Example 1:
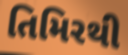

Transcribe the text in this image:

તિમિરથી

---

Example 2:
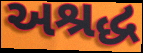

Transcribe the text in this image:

અશ્રદ્ધ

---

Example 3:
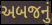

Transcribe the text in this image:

અબજનું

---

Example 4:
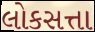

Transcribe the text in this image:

લોકસત્તા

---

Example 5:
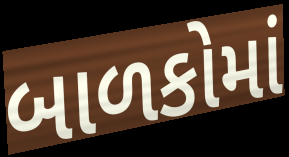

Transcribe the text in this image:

બાળકોમાં